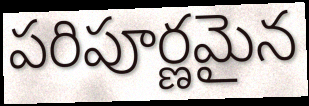
పరిపూర్ణమైన